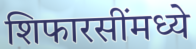
शिफारसींमध्ये